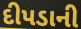
દીપડાની